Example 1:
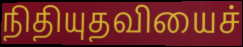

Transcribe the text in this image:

நிதியுதவியைச்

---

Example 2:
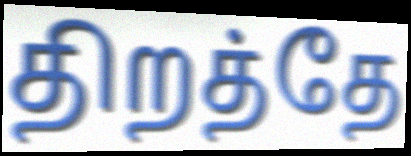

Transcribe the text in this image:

திறத்தே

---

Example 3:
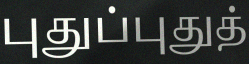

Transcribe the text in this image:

புதுப்புதுத்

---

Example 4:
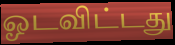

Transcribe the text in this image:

ஓடவிட்டது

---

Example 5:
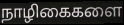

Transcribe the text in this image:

நாழிகைகளை